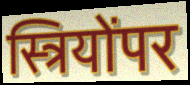
स्त्रियोंपर